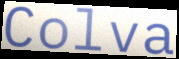
Colva